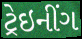
ટ્રેઇનીંગ